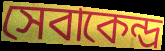
সেবাকেন্দ্র